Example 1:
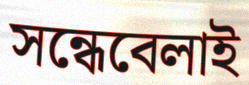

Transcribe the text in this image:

সন্ধেবেলাই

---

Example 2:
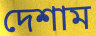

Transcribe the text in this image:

দেশাম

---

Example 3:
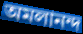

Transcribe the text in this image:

অমলানন্দ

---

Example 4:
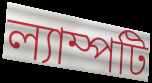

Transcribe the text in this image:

ল্যাম্পটি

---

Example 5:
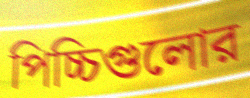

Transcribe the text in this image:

পিচ্চিগুলোর